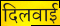
दिलवाई